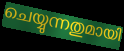
ചെയ്യുന്നതുമായി